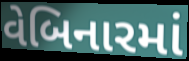
વેબિનારમાં